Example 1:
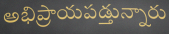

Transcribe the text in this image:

అభిప్రాయపడ్తున్నారు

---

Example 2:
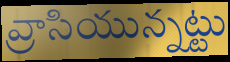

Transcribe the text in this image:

వ్రాసియున్నట్టు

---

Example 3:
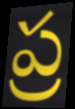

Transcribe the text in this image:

ప్ర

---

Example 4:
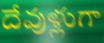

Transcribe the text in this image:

దేవుళ్లుగా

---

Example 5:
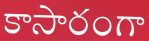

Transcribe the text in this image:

కాసారంగా